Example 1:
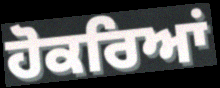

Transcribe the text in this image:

ਹੋਕਰਿਆਂ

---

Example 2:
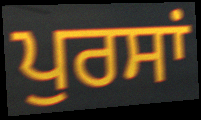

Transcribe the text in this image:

ਪੁਰਸਾਂ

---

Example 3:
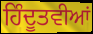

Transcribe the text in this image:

ਹਿੰਦੂਤਵੀਆਂ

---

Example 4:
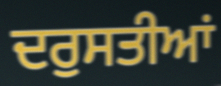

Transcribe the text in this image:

ਦਰੁਸਤੀਆਂ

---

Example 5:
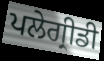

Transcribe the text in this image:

ਪਲੇਗ੍ਰੀਡੀ